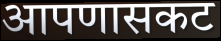
आपणासकट